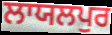
ਲਾਯਲਪੁਰ